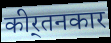
कीर्तनकार